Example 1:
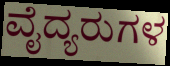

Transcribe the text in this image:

ವೈದ್ಯರುಗಳ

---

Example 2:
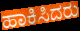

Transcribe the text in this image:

ಹಾಕಿಸಿದರು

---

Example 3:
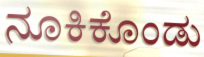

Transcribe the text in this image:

ನೂಕಿಕೊಂಡು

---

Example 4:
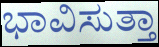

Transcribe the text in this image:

ಭಾವಿಸುತ್ತಾ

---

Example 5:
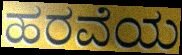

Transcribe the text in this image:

ಹರವೆಯ